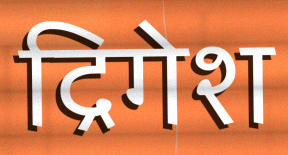
द्रिगेश